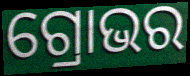
ଗ୍ରୋଭର